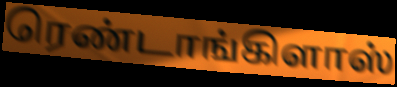
ரெண்டாங்கிளாஸ்